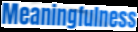
Meaningfulness